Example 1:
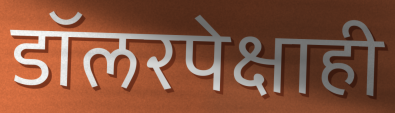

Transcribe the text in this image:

डॉलरपेक्षाही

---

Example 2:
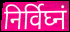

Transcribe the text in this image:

निर्विघ्नं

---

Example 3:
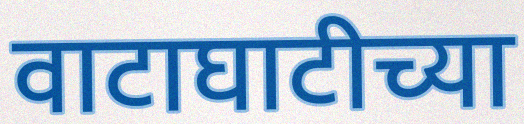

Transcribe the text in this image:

वाटाघाटीच्या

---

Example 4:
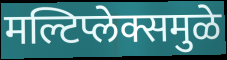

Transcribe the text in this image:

मल्टिप्लेक्समुळे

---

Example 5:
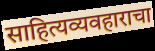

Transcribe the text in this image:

साहित्यव्यवहाराचा